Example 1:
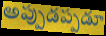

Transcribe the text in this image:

అప్పుడప్పడూ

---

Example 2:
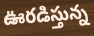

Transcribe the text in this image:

ఊరడిస్తున్న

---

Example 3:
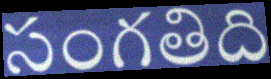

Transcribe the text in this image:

సంగతిది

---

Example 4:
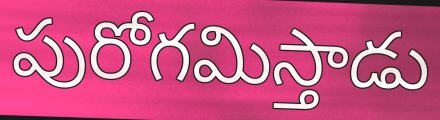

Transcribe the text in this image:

పురోగమిస్తాడు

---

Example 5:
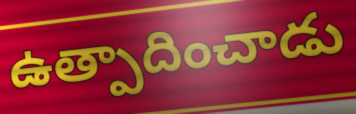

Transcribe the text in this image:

ఉత్పాదించాడు